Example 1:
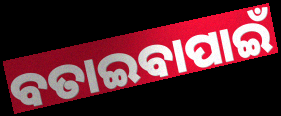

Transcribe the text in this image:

ବତାଇବାପାଇଁ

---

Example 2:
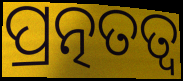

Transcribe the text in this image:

ପ୍ରତ୍ନତତ୍ୱ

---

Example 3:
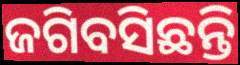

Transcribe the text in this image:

ଜଗିବସିଛନ୍ତି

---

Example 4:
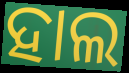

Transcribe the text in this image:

ହାଲ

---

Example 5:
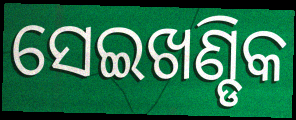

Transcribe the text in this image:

ସେଇଖଣ୍ଡିକ